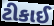
ટીકાઈ